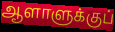
ஆளாளுக்குப்